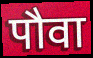
पौवा